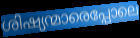
ശിഷ്യന്മാരെപ്പോലെ